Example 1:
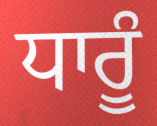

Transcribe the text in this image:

ਧਾਰੂੰ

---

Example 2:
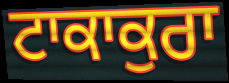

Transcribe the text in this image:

ਟਾਕਾਕੁਰਾ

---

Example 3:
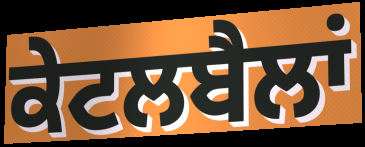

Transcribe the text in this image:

ਕੇਟਲਬੈਲਾਂ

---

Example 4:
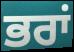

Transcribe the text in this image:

ਭਰਾਂ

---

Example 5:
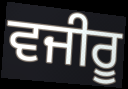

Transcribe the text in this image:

ਵਜੀਰੂ